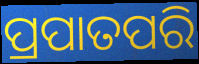
ପ୍ରପାତପରି